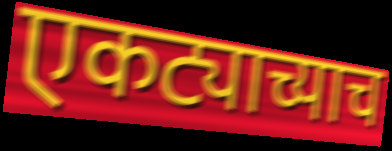
एकट्याच्याच